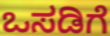
ಒಸಡಿಗೆ